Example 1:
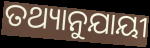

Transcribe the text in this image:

ତଥ୍ୟାନୁଯାୟୀ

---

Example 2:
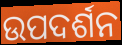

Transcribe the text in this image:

ଉପଦର୍ଶନ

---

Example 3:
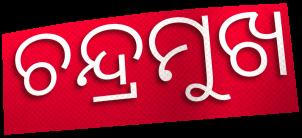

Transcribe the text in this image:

ଚନ୍ଦ୍ରମୁଖ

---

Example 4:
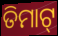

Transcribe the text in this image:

ତିମାଟ୍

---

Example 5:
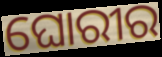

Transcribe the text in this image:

ଘୋରୀର